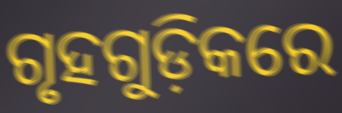
ଗୃହଗୁଡ଼ିକରେ